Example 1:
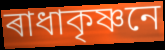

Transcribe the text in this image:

ৰাধাকৃষ্ণনে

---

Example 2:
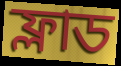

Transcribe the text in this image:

ফ্লাড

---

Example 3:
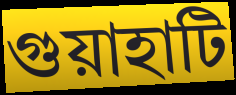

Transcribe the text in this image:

গুয়াহাটি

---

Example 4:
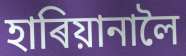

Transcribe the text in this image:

হাৰিয়ানালৈ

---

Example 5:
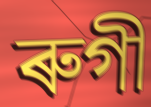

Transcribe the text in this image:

ৰুগী